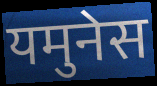
यमुनेस